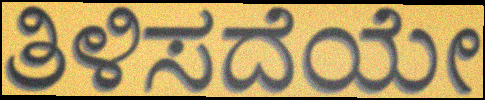
ತಿಳಿಸದೆಯೇ